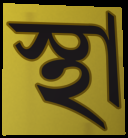
স্থা